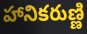
హానికరుణ్ణి